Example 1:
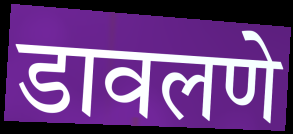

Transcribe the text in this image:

डावलणे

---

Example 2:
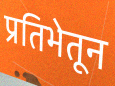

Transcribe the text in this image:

प्रतिभेतून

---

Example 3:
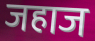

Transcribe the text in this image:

जहाज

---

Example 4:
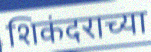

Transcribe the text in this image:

शिकंदराच्या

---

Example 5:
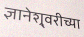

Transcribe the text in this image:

ज्ञानेश्र्वरीच्या